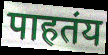
पाहतंय